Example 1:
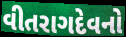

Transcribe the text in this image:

વીતરાગદેવનો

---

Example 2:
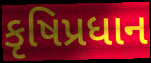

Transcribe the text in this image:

કૃષિપ્રધાન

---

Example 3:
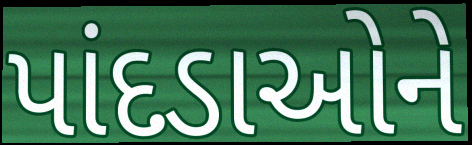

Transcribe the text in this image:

પાંદડાઓને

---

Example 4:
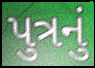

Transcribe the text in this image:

પુત્રનું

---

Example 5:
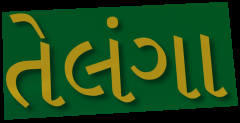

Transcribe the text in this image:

તેલંગા